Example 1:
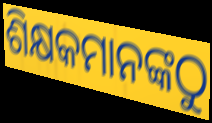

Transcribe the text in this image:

ଶିକ୍ଷକମାନଙ୍କଠୁ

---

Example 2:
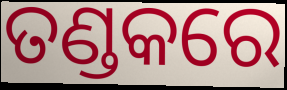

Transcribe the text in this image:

ତଣ୍ଡକରେ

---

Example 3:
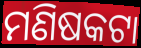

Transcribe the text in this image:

ମଣିଷକଟା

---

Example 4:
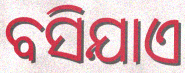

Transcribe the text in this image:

ବସିଯାଏ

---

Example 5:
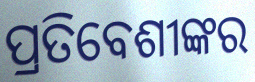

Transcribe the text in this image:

ପ୍ରତିବେଶୀଙ୍କର